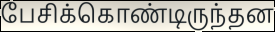
பேசிக்கொண்டிருந்தன